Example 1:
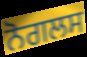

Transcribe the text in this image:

ਨੋਗਲਸ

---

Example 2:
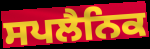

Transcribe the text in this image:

ਸਪਲੈਨਿਕ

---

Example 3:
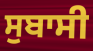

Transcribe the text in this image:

ਸੁਬਾਸੀ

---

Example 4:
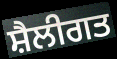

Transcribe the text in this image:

ਸ਼ੈਲੀਗਤ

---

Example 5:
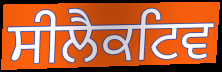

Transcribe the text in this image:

ਸੀਲੈਕਟਿਵ